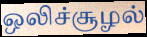
ஒலிச்சூழல்